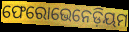
ଫେରୋଭେନେଡ଼ିୟମ